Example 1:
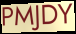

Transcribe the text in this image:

PMJDY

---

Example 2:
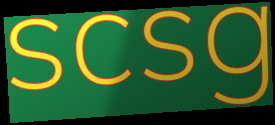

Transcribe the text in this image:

scsg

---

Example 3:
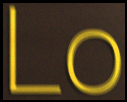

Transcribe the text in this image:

Lo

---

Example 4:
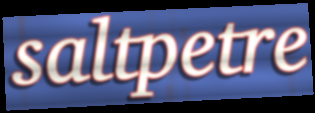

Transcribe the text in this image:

saltpetre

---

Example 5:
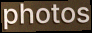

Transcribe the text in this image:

photos